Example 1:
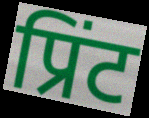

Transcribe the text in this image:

प्रिंट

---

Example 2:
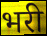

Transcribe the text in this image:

भरी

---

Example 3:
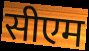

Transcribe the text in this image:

सीएम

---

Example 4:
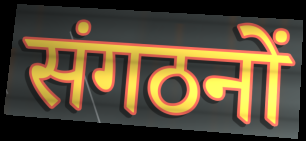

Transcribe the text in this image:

संगठनों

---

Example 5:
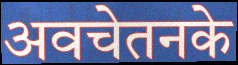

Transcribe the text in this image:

अवचेतनके